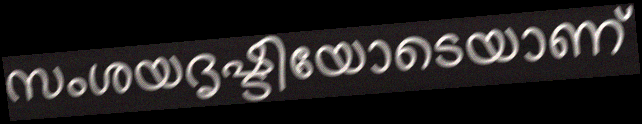
സംശയദൃഷ്ടിയോടെയാണ്